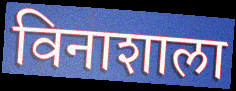
विनाशाला